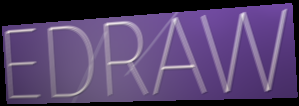
EDRAW